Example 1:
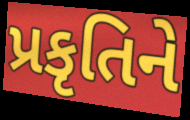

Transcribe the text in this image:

પ્રકૃતિને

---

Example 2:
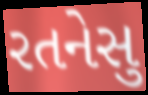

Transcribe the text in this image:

રતનેસુ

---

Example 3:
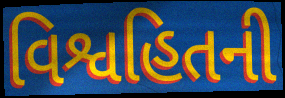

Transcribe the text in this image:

વિશ્વહિતની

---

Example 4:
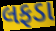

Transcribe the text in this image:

લફડા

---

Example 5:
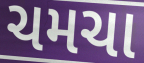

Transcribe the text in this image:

ચમચા